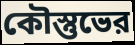
কৌস্তুভের